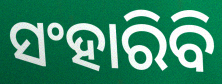
ସଂହାରିବି